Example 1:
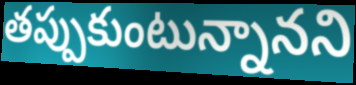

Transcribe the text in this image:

తప్పుకుంటున్నానని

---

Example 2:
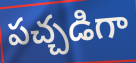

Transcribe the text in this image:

పచ్చడిగా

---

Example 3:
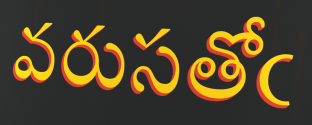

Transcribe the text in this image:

వరుసతోఁ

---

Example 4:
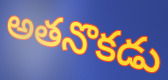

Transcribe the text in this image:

అతనొకడు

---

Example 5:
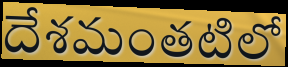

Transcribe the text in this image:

దేశమంతటిలో